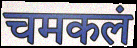
चमकलं